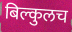
बिल्कुलच